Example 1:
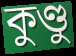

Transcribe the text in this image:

কুণ্ডু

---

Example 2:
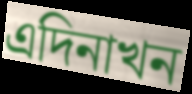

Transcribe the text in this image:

এদিনাখন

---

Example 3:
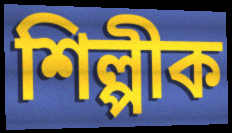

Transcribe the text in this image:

শিল্পীক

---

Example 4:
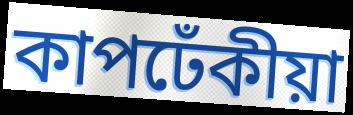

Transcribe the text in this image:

কাপঢেঁকীয়া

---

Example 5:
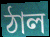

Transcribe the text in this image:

ঠাল